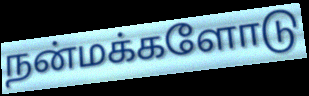
நன்மக்களோடு